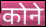
कोने